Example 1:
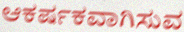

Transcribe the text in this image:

ಆಕರ್ಷಕವಾಗಿಸುವ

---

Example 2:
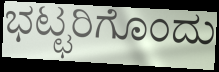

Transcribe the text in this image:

ಭಟ್ಟರಿಗೊಂದು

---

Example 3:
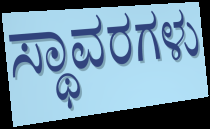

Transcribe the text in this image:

ಸ್ಥಾವರಗಳು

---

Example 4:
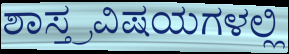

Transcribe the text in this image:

ಶಾಸ್ತ್ರವಿಷಯಗಳಲ್ಲಿ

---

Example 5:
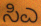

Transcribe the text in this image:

ಸಿಎ